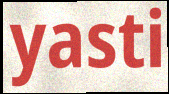
yasti